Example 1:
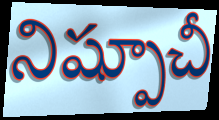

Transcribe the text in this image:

నిష్పూచీ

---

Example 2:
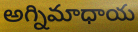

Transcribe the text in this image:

అగ్నిమాధాయ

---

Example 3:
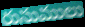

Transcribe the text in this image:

రుసుములు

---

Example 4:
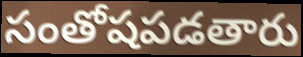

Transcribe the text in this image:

సంతోషపడతారు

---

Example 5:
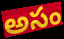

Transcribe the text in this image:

అసం